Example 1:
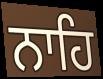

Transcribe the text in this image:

ਨਾਹਿ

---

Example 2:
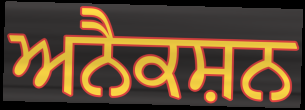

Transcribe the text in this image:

ਅਨੈਕਸ਼ਨ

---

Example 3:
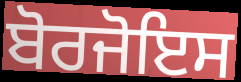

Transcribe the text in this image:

ਬੋਰਜੋਇਸ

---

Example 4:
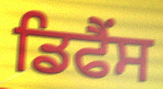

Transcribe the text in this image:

ਡਿਫੈਂਸ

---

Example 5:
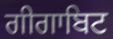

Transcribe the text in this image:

ਗੀਗਾਬਿਟ